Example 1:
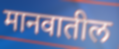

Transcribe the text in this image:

मानवातील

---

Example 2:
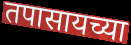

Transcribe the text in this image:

तपासायच्या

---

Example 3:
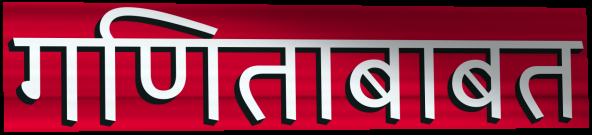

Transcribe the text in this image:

गणिताबाबत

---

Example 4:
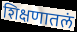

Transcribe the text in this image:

शिक्षणातलं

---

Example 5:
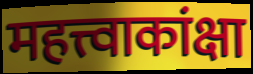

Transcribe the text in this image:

महत्त्वाकांक्षा